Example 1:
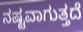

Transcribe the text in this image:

ನಷ್ಟವಾಗುತ್ತದೆ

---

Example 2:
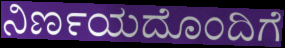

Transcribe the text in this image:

ನಿರ್ಣಯದೊಂದಿಗೆ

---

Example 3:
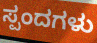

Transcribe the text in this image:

ಸ್ಪಂದಗಳು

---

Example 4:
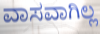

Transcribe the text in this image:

ವಾಸವಾಗಿಲ್ಲ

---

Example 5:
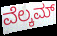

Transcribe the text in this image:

ವೆಲ್ಕಮ್